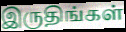
இருதிங்கள்